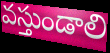
వస్తుండాలి